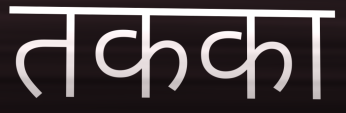
तकका